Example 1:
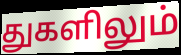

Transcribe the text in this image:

துகளிலும்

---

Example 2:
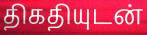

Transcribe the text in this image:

திகதியுடன்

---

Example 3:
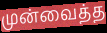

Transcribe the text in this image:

முன்வைத்த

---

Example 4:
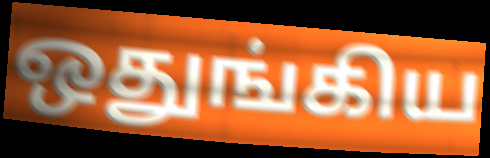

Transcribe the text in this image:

ஒதுங்கிய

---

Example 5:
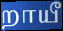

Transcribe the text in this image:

றாயீ